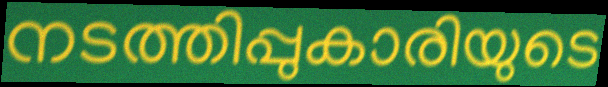
നടത്തിപ്പുകാരിയുടെ